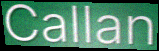
Callan